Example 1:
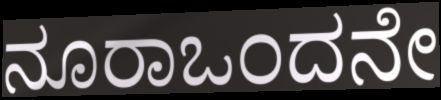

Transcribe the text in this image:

ನೂರಾಒಂದನೇ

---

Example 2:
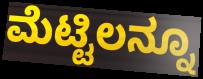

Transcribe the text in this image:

ಮೆಟ್ಟಿಲನ್ನೂ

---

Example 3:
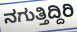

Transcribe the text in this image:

ನಗುತ್ತಿದ್ದಿರಿ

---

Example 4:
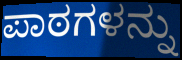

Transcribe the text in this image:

ಪಾಠಗಳನ್ನು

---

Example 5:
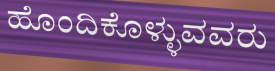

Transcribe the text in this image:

ಹೊಂದಿಕೊಳ್ಳುವವರು